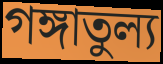
গঙ্গাতুল্য